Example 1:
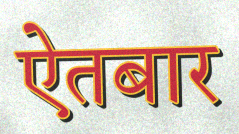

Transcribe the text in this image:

ऐतबार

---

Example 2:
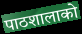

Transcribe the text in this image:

पाठशालाको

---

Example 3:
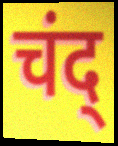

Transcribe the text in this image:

चंद्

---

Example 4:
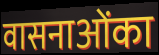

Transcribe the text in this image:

वासनाओंका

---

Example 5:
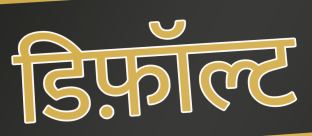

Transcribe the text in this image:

डिफ़ॉल्ट